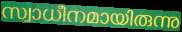
സ്വാധീനമായിരുന്നു